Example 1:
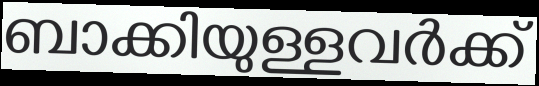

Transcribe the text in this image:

ബാക്കിയുള്ളവർക്ക്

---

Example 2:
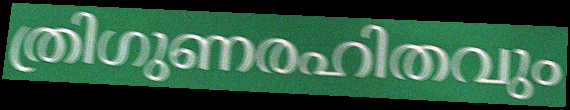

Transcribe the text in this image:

ത്രിഗുണരഹിതവും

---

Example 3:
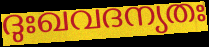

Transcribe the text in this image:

ദുഃഖവദന്യതഃ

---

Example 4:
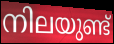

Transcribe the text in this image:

നിലയുണ്ട്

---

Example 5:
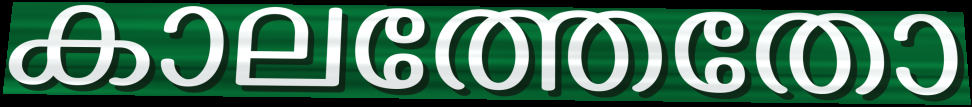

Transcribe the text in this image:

കാലത്തേതോ